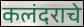
कलंदराचे